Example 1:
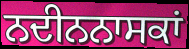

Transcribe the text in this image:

ਨਦੀਨਨਾਸਕਾਂ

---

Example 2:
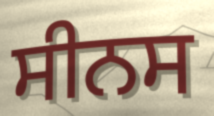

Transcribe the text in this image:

ਸੀਨਸ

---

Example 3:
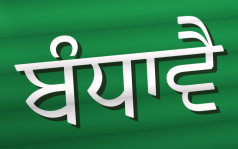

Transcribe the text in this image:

ਬੰਧਾਵੈ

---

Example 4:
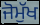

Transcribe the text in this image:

ਜੋਮੁੱਖ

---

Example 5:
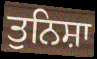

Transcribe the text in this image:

ਤੁਨਿਸ਼ਾ